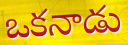
ఒకనాడు